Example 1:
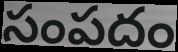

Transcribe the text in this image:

సంపదం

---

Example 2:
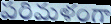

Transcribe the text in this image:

పరిమళంగా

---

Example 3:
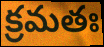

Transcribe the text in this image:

క్రమతః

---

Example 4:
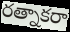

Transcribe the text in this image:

రత్నాకరా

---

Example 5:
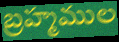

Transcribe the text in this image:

బ్రహ్మముల